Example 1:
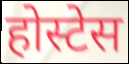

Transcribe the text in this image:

होस्टेस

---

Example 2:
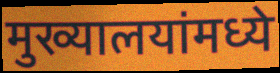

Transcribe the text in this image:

मुख्यालयांमध्ये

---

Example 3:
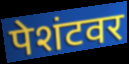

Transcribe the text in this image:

पेशंटवर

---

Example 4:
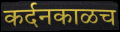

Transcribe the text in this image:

कर्दनकाळच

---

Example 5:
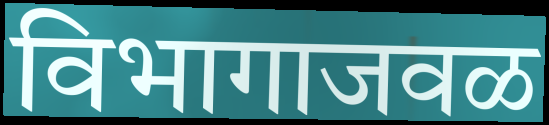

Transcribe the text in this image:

विभागाजवळ